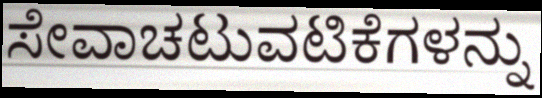
ಸೇವಾಚಟುವಟಿಕೆಗಳನ್ನು